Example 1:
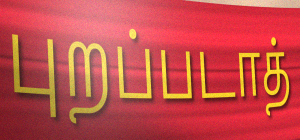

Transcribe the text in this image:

புறப்படாத்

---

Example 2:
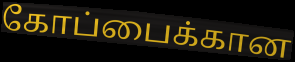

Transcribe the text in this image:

கோப்பைக்கான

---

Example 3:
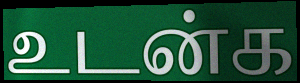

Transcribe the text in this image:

உடன்க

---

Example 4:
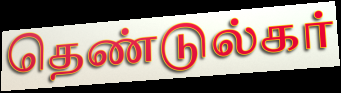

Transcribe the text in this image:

தெண்டுல்கர்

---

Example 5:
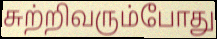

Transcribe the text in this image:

சுற்றிவரும்போது